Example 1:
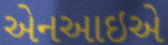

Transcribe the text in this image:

એનઆઇએ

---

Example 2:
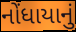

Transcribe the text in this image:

નોંધાયાનું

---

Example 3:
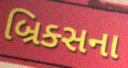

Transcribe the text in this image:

બ્રિક્સના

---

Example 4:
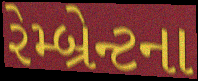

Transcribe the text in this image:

રેમ્બ્રેન્ટના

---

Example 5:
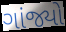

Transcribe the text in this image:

ગાંજ્યો